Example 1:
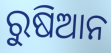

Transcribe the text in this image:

ରୁଷିଆନ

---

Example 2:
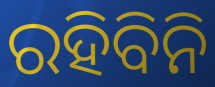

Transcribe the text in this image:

ରହିବିନି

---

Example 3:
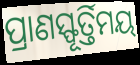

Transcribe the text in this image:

ପ୍ରାଣସ୍ଫୂର୍ତ୍ତିମୟ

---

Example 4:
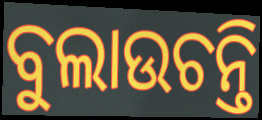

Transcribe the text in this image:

ବୁଲାଉଚନ୍ତି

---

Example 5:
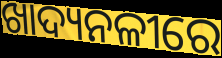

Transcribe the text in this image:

ଖାଦ୍ୟନଳୀରେ